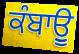
ਕੰਬਾਊੁ